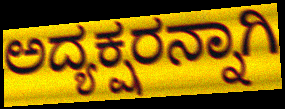
ಅದ್ಯಕ್ಷರನ್ನಾಗಿ